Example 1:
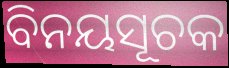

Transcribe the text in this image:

ବିନୟସୂଚକ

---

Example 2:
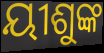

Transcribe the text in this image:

ୟୀଶୁଙ୍କ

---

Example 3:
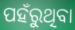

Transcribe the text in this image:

ପହଁରୁଥିବା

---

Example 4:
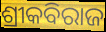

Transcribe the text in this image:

ଶ୍ରୀକବିରାଜ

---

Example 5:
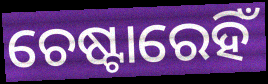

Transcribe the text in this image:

ଚେଷ୍ଟାରେହିଁ